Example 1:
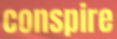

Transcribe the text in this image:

conspire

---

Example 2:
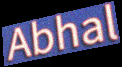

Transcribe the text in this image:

Abhal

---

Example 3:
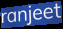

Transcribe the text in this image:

ranjeet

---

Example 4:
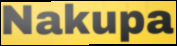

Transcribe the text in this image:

Nakupa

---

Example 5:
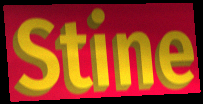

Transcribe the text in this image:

Stine